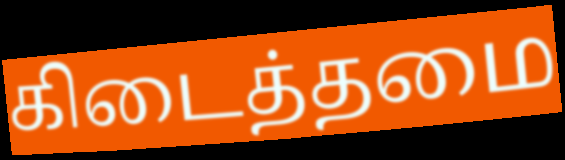
கிடைத்தமை